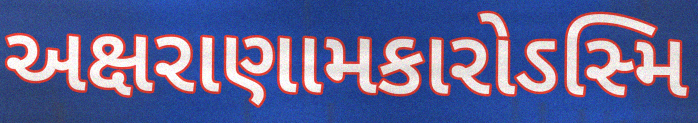
અક્ષરાણામકારોઽસ્મિ